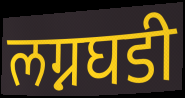
लग्नघडी